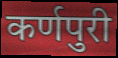
कर्णपुरी